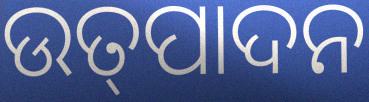
ଉତ୍‍ପାଦନ